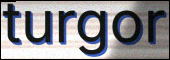
turgor